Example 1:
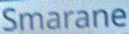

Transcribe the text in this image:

Smarane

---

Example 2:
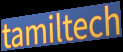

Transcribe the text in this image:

tamiltech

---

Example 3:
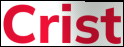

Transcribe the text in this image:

Crist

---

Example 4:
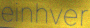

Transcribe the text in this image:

einhver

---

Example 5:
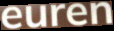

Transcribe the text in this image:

euren